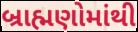
બ્રાહ્મણોમાંથી